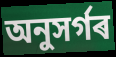
অনুসৰ্গৰ